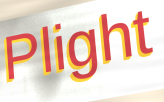
Plight